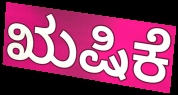
ಋಷಿಕೆ